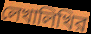
লেখালিখির